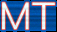
MT